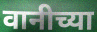
वानीच्या